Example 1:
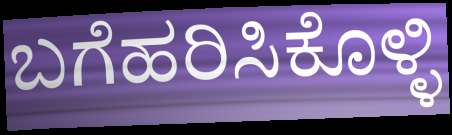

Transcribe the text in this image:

ಬಗೆಹರಿಸಿಕೊಳ್ಳಿ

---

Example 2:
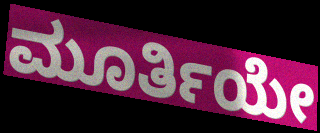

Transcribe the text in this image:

ಮೂರ್ತಿಯೇ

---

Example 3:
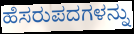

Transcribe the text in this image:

ಹೆಸರುಪದಗಳನ್ನು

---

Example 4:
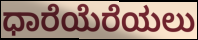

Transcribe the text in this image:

ಧಾರೆಯೆರೆಯಲು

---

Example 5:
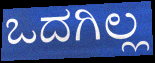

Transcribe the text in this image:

ಒದಗಿಲ್ಲ